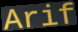
Arif